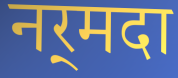
नर्मदा